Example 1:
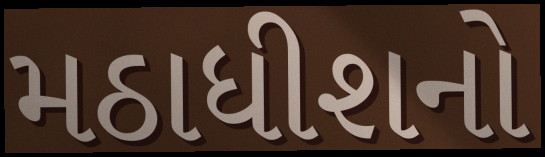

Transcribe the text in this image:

મઠાધીશનો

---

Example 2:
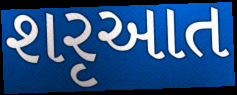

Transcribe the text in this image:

શરૃઆત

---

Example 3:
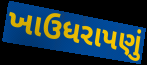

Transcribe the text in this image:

ખાઉધરાપણું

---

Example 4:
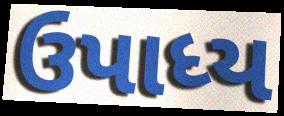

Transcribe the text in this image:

ઉપાધ્ય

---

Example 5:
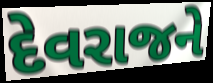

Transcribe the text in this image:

દેવરાજને